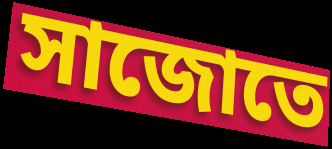
সাজোতে